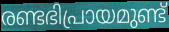
രണ്ടഭിപ്രായമുണ്ട്